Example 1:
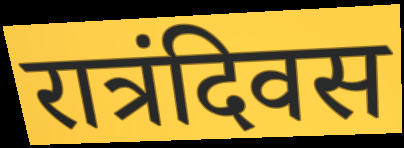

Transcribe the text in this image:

रात्रंदिवस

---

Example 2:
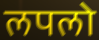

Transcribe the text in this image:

लपलो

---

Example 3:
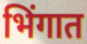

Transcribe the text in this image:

भिंगात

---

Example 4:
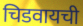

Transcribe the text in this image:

चिडवायची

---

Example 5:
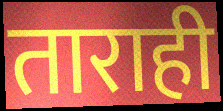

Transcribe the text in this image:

ताराही